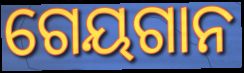
ଗେୟଗାନ